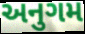
અનુગમ